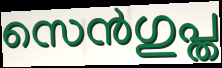
സെൻഗുപ്ത